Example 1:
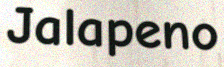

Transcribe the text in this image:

Jalapeno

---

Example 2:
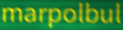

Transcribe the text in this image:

marpolbul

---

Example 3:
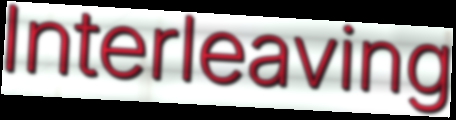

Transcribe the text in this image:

Interleaving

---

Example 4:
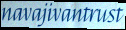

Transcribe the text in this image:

navajivantrust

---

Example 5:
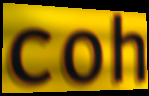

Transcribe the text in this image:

coh